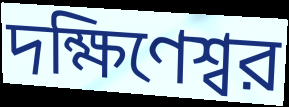
দক্ষিণেশ্বর